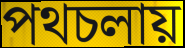
পথচলায়